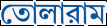
তোলারাম